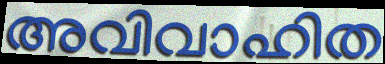
അവിവാഹിത